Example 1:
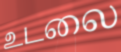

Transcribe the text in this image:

உடலை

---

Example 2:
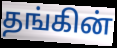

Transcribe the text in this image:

தங்கின்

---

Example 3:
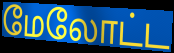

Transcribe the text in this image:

மேலோட்ட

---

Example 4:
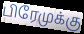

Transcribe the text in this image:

பிரேமுக்கு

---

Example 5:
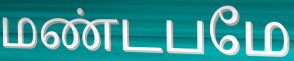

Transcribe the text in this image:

மண்டபமே